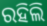
ରହିଲି